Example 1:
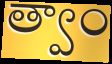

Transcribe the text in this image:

త్వాం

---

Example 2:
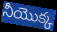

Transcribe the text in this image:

నీయొక్క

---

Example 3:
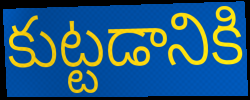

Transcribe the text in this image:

కుట్టడానికి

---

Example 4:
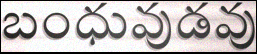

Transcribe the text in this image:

బంధువుడవు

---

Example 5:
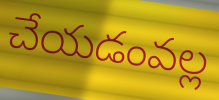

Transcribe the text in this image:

చేయడంవల్ల